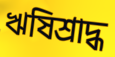
ঋষিশ্রাদ্ধ